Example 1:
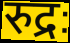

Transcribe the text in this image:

रुद्रः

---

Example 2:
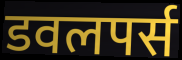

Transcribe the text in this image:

डवलपर्स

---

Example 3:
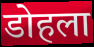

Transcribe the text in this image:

डोहला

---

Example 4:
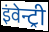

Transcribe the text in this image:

इंवेन्ट्री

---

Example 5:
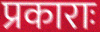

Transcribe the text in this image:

प्रकाराः